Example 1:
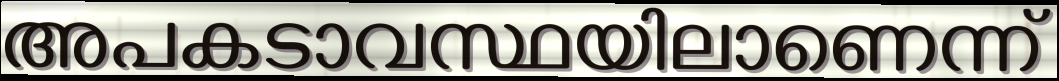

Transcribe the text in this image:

അപകടാവസ്ഥയിലാണെന്ന്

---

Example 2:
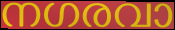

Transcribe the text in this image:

നഗരവാ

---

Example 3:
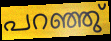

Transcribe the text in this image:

പറഞ്ഞു്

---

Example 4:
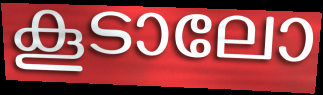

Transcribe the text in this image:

കൂടാലോ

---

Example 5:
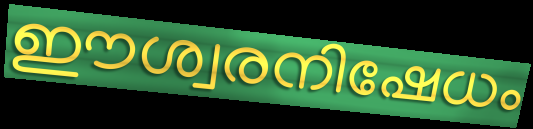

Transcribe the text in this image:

ഈശ്വരനിഷേധം